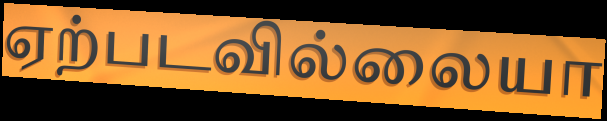
ஏற்படவில்லையா